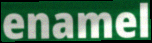
enamel